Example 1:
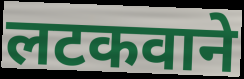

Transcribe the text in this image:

लटकवाने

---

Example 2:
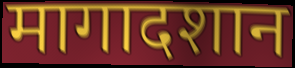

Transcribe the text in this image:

मागादशान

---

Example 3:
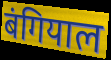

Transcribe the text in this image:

बंगियाल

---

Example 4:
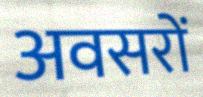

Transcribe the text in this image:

अवसरों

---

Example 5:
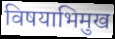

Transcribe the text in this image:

विषयाभिमुख